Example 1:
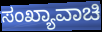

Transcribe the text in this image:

ಸಂಖ್ಯಾವಾಚಿ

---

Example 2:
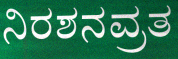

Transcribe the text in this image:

ನಿರಶನವ್ರತ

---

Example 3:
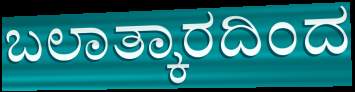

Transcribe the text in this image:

ಬಲಾತ್ಕಾರದಿಂದ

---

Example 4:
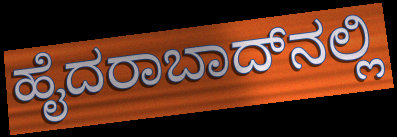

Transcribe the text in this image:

ಹೈದರಾಬಾದ್‌ನಲ್ಲಿ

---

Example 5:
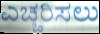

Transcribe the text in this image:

ಎಚ್ಚರಿಸಲು